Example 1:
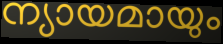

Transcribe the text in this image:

ന്യായമായും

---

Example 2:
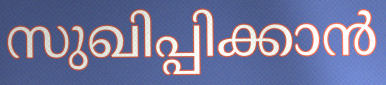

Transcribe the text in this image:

സുഖിപ്പിക്കാൻ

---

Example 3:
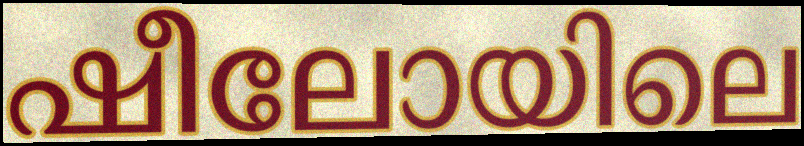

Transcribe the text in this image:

ഷീലോയിലെ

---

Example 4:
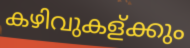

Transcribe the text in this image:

കഴിവുകള്ക്കും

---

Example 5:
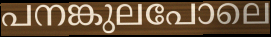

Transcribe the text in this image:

പനങ്കുലപോലെ